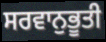
ਸਰਵਾਨੁਭੂਤੀ